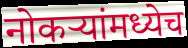
नोकऱ्यांमध्येच